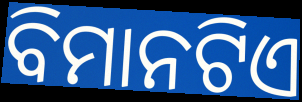
ବିମାନଟିଏ